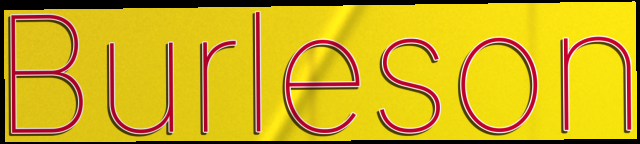
Burleson